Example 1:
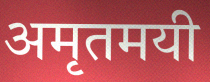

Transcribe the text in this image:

अमृतमयी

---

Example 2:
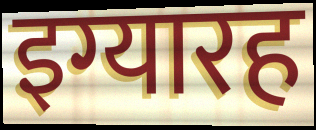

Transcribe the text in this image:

इग्यारह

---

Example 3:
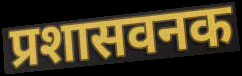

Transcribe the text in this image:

प्रशासवनक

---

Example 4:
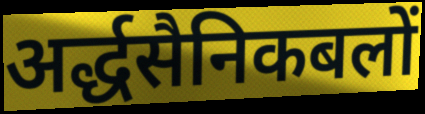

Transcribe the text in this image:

अर्द्धसैनिकबलों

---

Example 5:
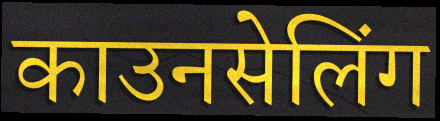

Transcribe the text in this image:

काउनसेलिंग